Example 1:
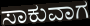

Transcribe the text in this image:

ಸಾಕುವಾಗ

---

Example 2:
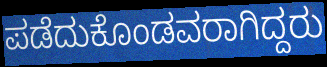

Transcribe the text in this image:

ಪಡೆದುಕೊಂಡವರಾಗಿದ್ದರು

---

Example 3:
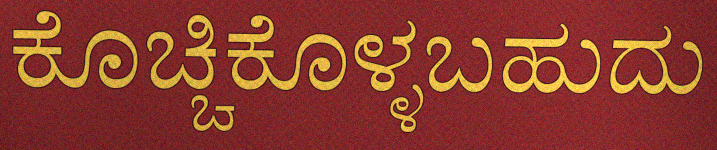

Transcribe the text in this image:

ಕೊಚ್ಚಿಕೊಳ್ಳಬಹುದು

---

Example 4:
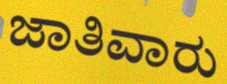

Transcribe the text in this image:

ಜಾತಿವಾರು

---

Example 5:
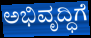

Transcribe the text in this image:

ಅಭಿವೃದ್ಧಿಗೆ